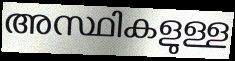
അസ്ഥികളുള്ള